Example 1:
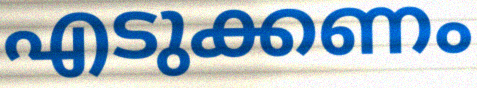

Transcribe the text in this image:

എടുക്കണം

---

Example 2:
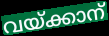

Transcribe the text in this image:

വയ്ക്കാന്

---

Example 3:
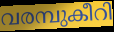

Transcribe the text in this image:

വരമ്പുകീറി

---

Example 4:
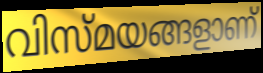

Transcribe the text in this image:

വിസ്മയങ്ങളാണ്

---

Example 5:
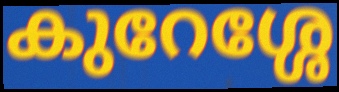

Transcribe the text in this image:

കുറേശ്ശേ